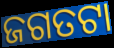
ଜଗତଟା